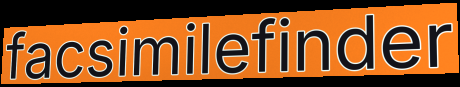
facsimilefinder